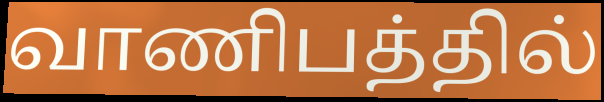
வாணிபத்தில்